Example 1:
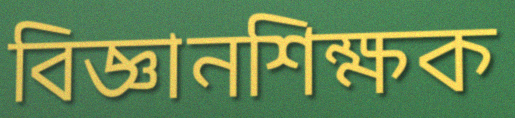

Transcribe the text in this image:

বিজ্ঞানশিক্ষক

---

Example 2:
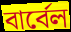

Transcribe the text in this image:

বার্বেল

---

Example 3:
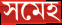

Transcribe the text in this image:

সমেহ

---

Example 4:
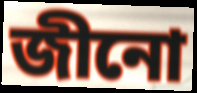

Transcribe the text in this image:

জীনো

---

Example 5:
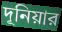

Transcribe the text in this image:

দূনিয়ার